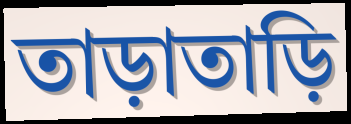
তাড়াতাড়ি